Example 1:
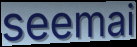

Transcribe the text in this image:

seemai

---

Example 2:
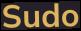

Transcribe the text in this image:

Sudo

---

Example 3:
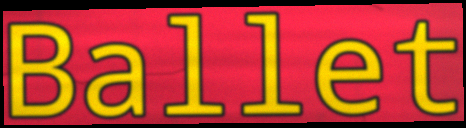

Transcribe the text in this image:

Ballet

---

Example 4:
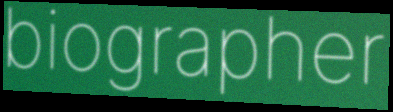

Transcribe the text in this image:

biographer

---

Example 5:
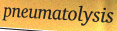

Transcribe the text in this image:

pneumatolysis